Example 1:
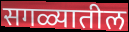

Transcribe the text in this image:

सगळ्यातील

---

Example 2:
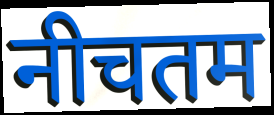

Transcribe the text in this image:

नीचतम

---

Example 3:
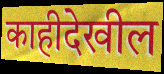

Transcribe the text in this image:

काहीदेखील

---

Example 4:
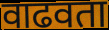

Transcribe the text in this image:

वाढवता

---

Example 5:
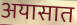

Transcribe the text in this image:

अयासात